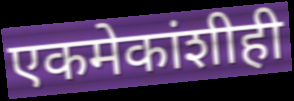
एकमेकांशीही